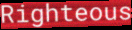
Righteous